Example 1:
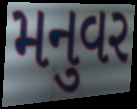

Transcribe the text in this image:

મનુવર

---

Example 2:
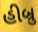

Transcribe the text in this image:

હીબ્રુ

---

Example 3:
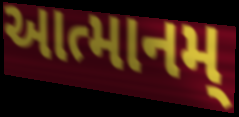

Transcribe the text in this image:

આત્માનમ્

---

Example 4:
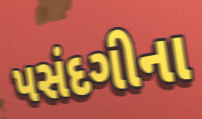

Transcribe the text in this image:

પસંદગીના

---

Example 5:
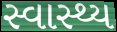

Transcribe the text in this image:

સ્વાસ્થ્ય